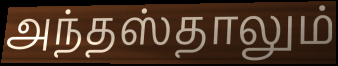
அந்தஸ்தாலும்